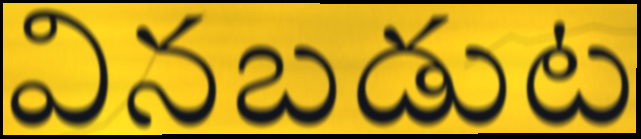
వినబడుట